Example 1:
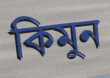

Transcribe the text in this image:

কিমুন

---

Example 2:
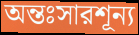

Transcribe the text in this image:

অন্তঃসারশূন্য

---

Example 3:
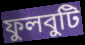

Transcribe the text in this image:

ফুলবুটি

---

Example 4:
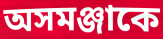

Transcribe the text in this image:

অসমঞ্জাকে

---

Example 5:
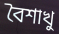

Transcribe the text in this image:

বৈশাখু